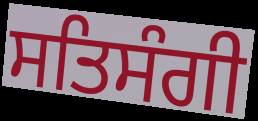
ਸਤਿਸੰਗੀ